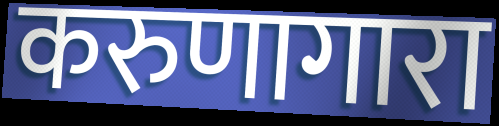
करुणागारा